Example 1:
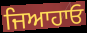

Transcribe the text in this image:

ਜਿਆਹਾਓ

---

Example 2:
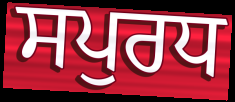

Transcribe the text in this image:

ਸਪੁਰਧ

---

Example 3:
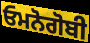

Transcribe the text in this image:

ਓਮਨੋਗੋਬੀ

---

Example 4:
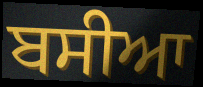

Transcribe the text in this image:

ਬਸੀਆ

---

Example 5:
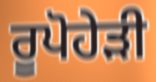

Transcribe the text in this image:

ਰੂਪੋਹੇੜੀ